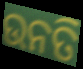
ଉନତି